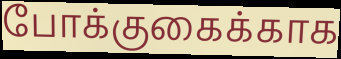
போக்குகைக்காக